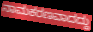
ನಾಮಕರಣವಾದದ್ದು